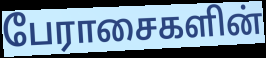
பேராசைகளின்